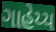
ગાહેય્ય